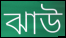
ঝাউ